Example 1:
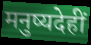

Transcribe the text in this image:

मनुष्यदेहीं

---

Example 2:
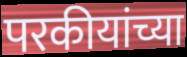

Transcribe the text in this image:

परकीयांच्या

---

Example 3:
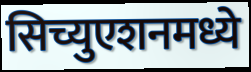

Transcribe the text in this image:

सिच्युएशनमध्ये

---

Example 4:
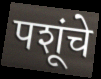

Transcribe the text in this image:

पशूंचे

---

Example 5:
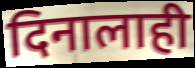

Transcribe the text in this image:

दिनालाही